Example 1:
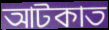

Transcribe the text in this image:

আটকাত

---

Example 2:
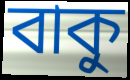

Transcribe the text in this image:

বাকু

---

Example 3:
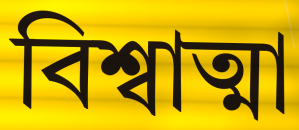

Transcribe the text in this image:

বিশ্বাত্মা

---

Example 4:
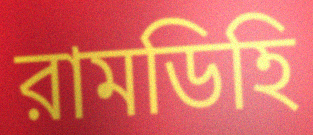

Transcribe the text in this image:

রামডিহি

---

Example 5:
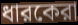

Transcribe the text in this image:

ধারকেরা